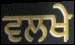
ਵਲਖੇ